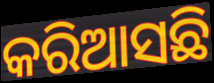
କରିଆସଛି